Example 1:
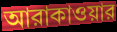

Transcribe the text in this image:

আরাকাওয়ার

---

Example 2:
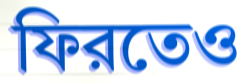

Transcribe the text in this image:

ফিরতেও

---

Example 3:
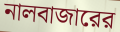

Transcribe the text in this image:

নালবাজারের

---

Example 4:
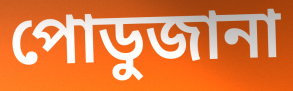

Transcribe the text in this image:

পোডুজানা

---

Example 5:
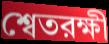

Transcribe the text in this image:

শ্বেতরক্ষী